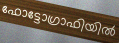
ഫോട്ടോഗ്രാഫിയിൽ